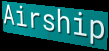
Airship